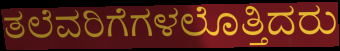
ತಲೆವರಿಗೆಗಳಲೊತ್ತಿದರು